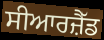
ਸੀਆਰਜ਼ੈੱਡ